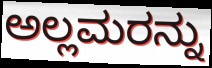
ಅಲ್ಲಮರನ್ನು